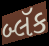
બ્લૅક